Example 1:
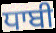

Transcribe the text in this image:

ਧਾਬੀ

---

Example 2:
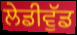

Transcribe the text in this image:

ਲੇਡੀਵੁੱਡ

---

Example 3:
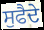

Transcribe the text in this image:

ਸੁਫੈਦੇ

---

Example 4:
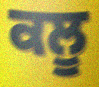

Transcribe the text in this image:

ਕਲੂ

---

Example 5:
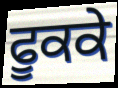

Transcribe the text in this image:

ਫੂਕਕੇ